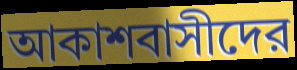
আকাশবাসীদের